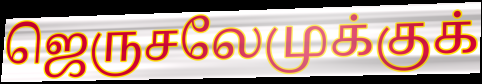
ஜெருசலேமுக்குக்